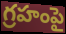
గ్రహంపై